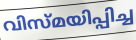
വിസ്മയിപ്പിച്ച